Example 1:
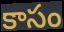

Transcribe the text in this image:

కాసం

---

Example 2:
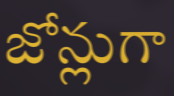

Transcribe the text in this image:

జోన్లుగా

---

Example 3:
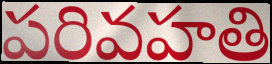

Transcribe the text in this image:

పరివహతి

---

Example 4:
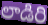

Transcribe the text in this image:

లాడిరి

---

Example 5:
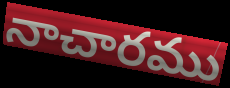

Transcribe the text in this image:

నాచారము